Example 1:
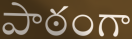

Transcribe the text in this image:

పాఠంగా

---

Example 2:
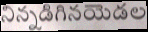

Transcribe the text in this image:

నిన్నడిగినయెడల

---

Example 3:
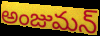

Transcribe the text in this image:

అంజుమన్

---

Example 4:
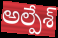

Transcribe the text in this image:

అల్పేశ్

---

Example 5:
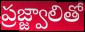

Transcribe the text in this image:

ప్రజ్జ్వాలితో